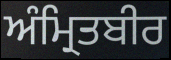
ਅੰਮ੍ਰਿਤਬੀਰ